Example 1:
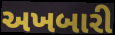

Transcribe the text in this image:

અખબારી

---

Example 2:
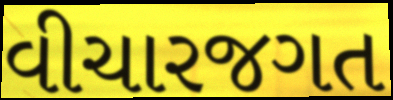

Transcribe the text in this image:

વીચારજગત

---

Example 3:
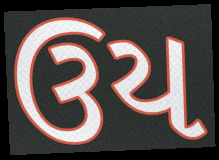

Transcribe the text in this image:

ઉય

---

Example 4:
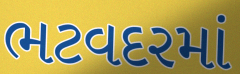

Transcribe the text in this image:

ભટવદરમાં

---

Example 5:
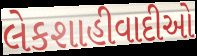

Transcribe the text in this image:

લેકશાહીવાદીઓ